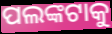
ପଲଙ୍କଟାକୁ